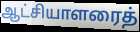
ஆட்சியாளரைத்